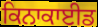
ਕਿਨਾਕਾਈਡ